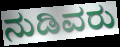
ನುಡಿವರು